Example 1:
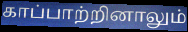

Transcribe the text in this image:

காப்பாற்றினாலும்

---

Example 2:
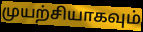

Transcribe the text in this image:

முயற்சியாகவும்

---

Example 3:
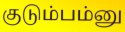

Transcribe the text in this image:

குடும்பம்னு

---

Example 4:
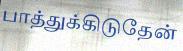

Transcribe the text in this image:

பாத்துக்கிடுதேன்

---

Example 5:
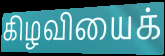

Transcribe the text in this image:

கிழவியைக்